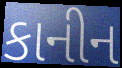
કાનીન